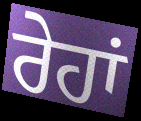
ਰੇਹਾਂ